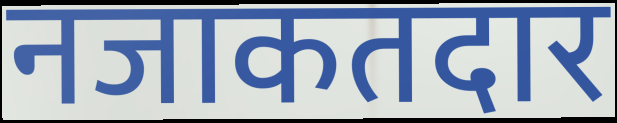
नजाकतदार